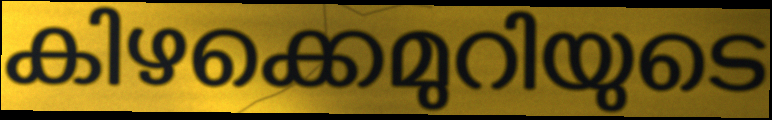
കിഴക്കെമുറിയുടെ